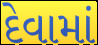
દેવામાં